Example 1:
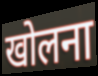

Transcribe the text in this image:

खोलना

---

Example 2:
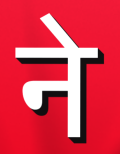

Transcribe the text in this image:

ने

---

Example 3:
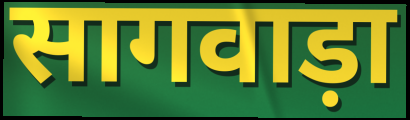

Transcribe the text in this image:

सागवाड़ा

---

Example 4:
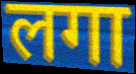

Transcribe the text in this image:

लगा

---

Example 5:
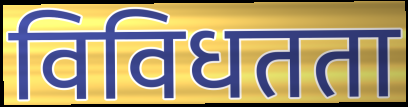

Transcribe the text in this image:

विविधतता